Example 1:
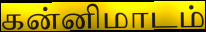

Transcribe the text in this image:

கன்னிமாடம்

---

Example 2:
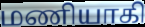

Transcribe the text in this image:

மணியாகி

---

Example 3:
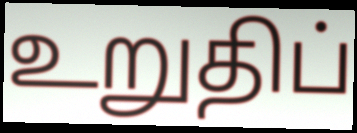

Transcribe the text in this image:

உறுதிப்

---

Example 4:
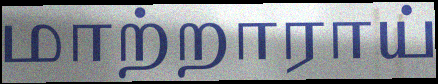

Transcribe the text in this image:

மாற்றாராய்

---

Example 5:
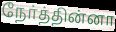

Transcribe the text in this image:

நேர்த்தின்னா